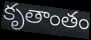
కృతాంతం